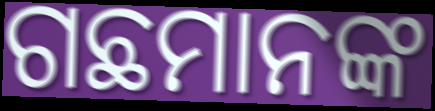
ଗଛମାନଙ୍କ